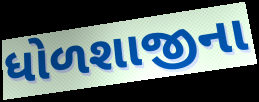
ધોળશાજીના